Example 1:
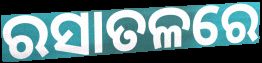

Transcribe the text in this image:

ରସାତଳରେ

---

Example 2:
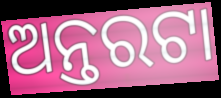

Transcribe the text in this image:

ଅନ୍ତରଟା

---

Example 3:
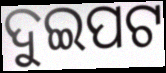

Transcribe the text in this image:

ଦୁଇପଟ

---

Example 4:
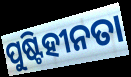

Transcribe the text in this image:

ପୁଷ୍ଟିହୀନତା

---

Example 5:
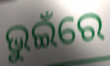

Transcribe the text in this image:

ଭୁଇଁରେ